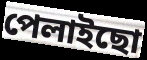
পেলাইছো